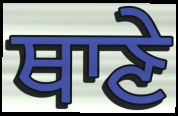
ਥਾਣੇ